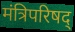
मंत्रिपरिषद्